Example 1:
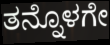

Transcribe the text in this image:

ತನ್ನೊಳಗೇ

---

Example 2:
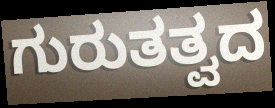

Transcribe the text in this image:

ಗುರುತತ್ವದ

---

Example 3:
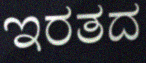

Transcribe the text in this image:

ಇರತದ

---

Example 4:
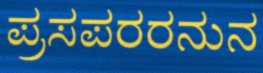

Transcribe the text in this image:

ಪ್ರಸಪರರನುನ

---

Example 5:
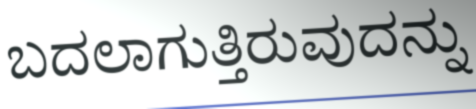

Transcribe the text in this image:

ಬದಲಾಗುತ್ತಿರುವುದನ್ನು